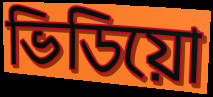
ভিডিয়ো